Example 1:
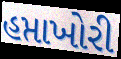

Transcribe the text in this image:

હપ્તાખોરી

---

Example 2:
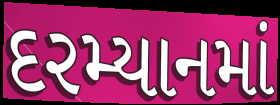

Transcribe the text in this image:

દરમ્યાનમાં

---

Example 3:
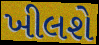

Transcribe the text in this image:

ખીલશે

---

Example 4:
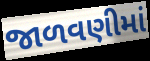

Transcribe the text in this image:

જાળવણીમાં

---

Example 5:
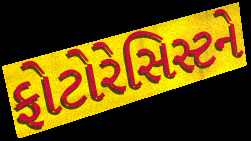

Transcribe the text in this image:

ફોટોરેસિસ્ટને